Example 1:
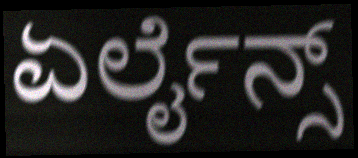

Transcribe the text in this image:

ಏರ್ಲೈನ್ಸ್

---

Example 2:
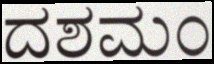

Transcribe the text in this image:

ದಶಮಂ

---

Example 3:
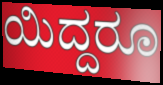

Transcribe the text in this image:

ಯಿದ್ದರೂ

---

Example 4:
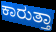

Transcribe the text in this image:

ಕಾರುತ್ತಾ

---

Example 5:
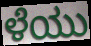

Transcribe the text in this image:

ಳೆಯು